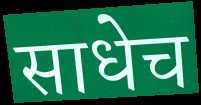
साधेच